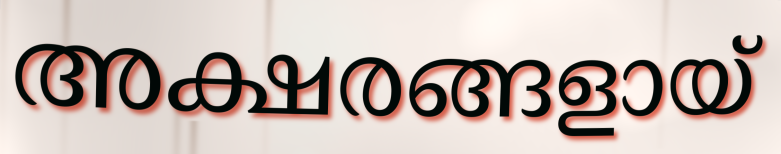
അക്ഷരങ്ങളായ്